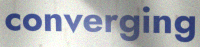
converging